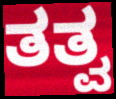
ತತ್ವ